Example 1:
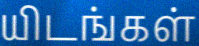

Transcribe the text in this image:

யிடங்கள்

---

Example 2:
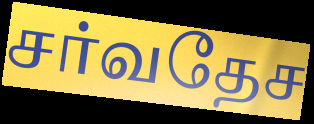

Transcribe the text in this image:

சர்வதேச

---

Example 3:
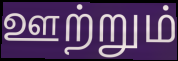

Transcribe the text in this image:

ஊற்றும்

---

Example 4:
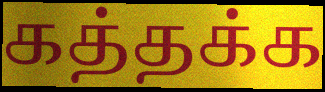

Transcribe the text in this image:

கத்தக்க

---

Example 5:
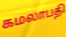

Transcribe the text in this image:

கமலாபதி